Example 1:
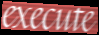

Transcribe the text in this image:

execute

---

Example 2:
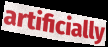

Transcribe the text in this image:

artificially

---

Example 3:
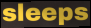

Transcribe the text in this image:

sleeps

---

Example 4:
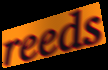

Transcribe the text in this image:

reeds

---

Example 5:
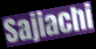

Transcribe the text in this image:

Sajiachi